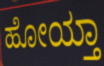
ಹೋಯ್ತಾ